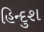
હિન્દુશ